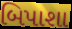
બિપાશા